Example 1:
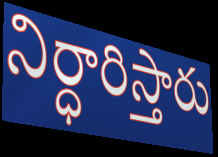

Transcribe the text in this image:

నిర్ధారిస్తారు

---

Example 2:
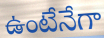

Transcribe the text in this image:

ఉంటేనేగా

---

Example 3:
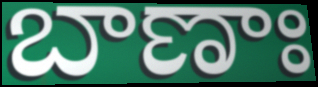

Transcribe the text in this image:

బాణాః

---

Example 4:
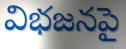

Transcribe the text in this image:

విభజనపై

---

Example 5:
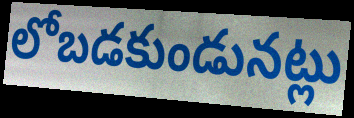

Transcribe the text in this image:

లోబడకుండునట్లు